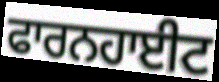
ਫਾਰਨਹਾਈਟ